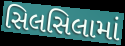
સિલસિલામાં